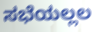
ಸಭೆಯಲ್ಲಲ